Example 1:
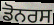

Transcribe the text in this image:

ਡੋਨਰਸ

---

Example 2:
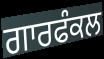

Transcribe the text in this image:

ਗਾਰਫੰਕਲ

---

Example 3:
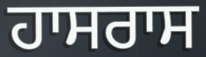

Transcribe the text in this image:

ਹਾਸਰਾਸ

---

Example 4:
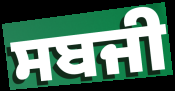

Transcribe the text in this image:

ਸਬਜੀ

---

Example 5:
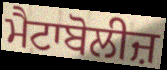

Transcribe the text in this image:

ਮੈਟਾਬੋਲੀਜ਼